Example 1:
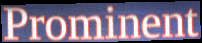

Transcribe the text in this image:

Prominent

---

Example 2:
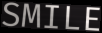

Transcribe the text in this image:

SMILE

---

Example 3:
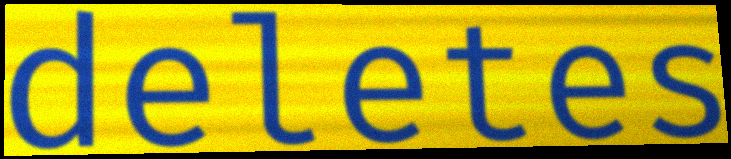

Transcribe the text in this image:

deletes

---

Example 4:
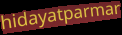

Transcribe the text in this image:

hidayatparmar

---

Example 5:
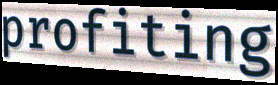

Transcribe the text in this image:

profiting